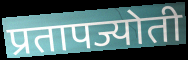
प्रतापज्योती